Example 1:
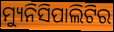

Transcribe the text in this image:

ମ୍ୟୁନିସିପାଲିଟିର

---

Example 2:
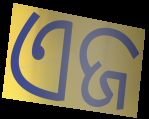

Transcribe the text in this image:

ଏଜ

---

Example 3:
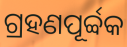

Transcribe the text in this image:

ଗ୍ରହଣପୂର୍ବ୍ବକ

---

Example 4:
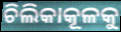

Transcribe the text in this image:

ଚିଲିକାକୂଳକୁ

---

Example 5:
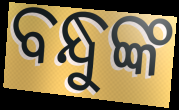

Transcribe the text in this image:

ବନ୍ଧୁଙ୍କ